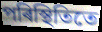
পৰিস্থিতিতে